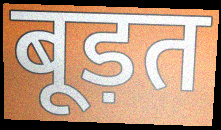
बूड़त